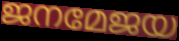
ജനമേജയ